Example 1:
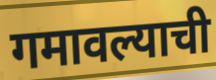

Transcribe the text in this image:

गमावल्याची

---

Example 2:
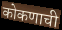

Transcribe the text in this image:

कोकणाची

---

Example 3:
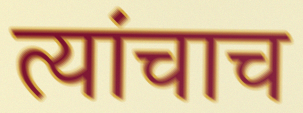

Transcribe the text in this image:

त्यांचाच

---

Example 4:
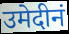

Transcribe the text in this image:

उमेदीनं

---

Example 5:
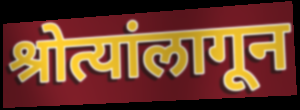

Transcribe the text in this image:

श्रोत्यांलागून